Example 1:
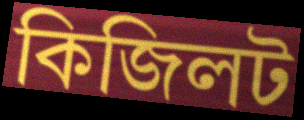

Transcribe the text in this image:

কিজিলট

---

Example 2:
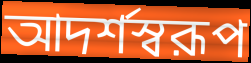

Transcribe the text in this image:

আদর্শস্বরূপ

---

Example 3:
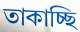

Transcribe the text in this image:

তাকাচ্ছি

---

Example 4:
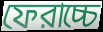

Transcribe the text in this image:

ফেরাচ্চে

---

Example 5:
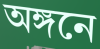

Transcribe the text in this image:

অঙ্গনে